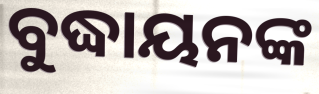
ବୁଦ୍ଧାୟନଙ୍କ